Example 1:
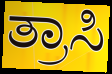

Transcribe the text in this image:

ತ್ರಾಸಿ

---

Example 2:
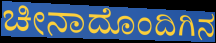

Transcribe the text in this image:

ಚೀನಾದೊಂದಿಗಿನ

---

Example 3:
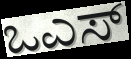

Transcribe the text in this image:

ಒಎಸ್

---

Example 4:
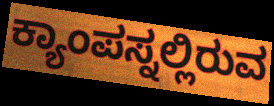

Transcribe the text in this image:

ಕ್ಯಾಂಪಸ್ನಲ್ಲಿರುವ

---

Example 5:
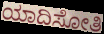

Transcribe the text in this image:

ಯಾದಿಸೋತಿ